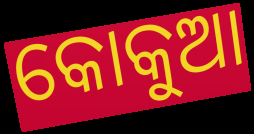
କୋକୁଆ